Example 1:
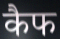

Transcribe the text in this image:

कैफ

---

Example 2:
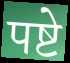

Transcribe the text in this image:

पष्टे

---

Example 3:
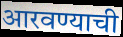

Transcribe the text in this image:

आरवण्याची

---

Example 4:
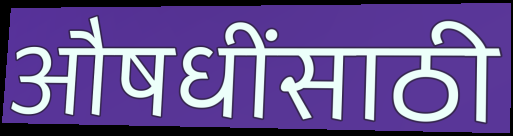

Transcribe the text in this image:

औषधींसाठी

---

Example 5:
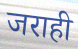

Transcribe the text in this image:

जराही